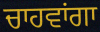
ਚਾਹਵਾਂਗਾ